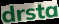
drsta